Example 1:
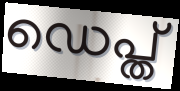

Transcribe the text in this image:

ഡെപ്ത്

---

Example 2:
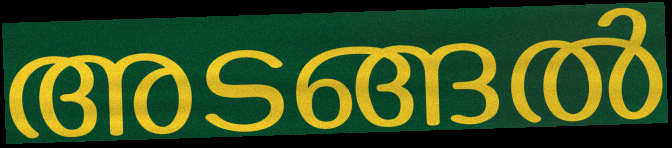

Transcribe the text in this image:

അടങ്ങൽ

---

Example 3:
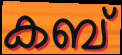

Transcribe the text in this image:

കബ്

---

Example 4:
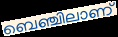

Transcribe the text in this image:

ബെഞ്ചിലാണ്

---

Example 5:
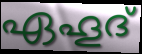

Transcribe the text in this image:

ഏഹൂദ്